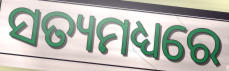
ସତ୍ୟମଧ୍ୟରେ